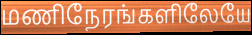
மணிநேரங்களிலேயே